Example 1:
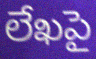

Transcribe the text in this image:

లేఖపై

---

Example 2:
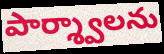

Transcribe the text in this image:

పార్శ్వాలను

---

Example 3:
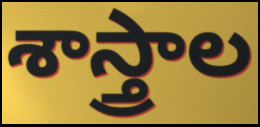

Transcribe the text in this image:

శాస్త్రాల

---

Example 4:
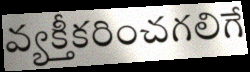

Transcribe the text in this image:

వ్యక్తీకరించగలిగే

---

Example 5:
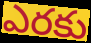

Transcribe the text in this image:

ఎరకు